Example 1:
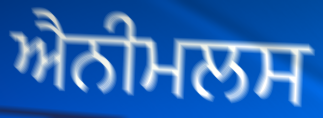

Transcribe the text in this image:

ਐਨੀਮਲਸ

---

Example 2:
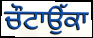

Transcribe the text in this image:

ਚੌਟਾਉੱਕਾ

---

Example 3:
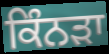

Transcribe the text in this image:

ਕਿੰਨੜਾ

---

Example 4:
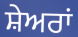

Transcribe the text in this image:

ਸ਼ੇਅਰਾਂ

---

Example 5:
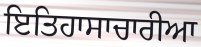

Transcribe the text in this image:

ਇਤਿਹਾਸਾਚਾਰੀਆ